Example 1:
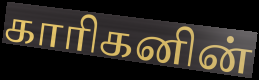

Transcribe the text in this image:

காரிகனின்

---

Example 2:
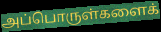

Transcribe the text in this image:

அப்பொருள்களைக்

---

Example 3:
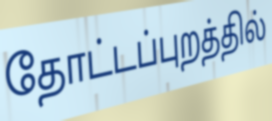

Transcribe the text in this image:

தோட்டப்புறத்தில்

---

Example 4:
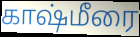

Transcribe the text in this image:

காஷ்மீரை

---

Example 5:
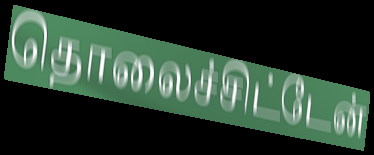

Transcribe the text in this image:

தொலைச்சிட்டேன்